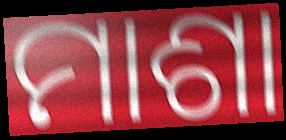
ମାଶା